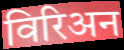
विरिअन